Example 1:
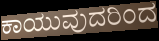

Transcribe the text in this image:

ಕಾಯುವುದರಿಂದ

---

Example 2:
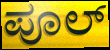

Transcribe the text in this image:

ಪೂಲ್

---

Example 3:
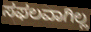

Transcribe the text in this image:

ಸಫಲವಾಗಿಲ್ಲ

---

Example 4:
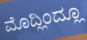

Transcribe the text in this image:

ಮೊದ್ಲಿಂದ್ಲೂ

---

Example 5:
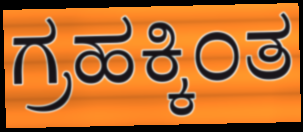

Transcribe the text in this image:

ಗ್ರಹಕ್ಕಿಂತ